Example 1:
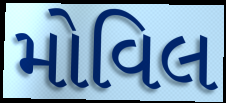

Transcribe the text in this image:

મોવિલ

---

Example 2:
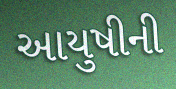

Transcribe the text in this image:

આયુષીની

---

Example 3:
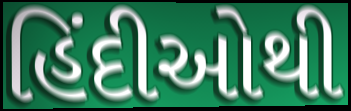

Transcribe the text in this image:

હિંદીઓથી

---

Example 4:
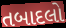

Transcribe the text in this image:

તબાદલો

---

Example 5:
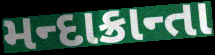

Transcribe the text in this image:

મન્દાક્રાન્તા